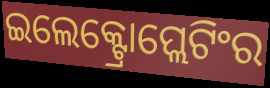
ଇଲେକ୍ଟ୍ରୋପ୍ଲେଟିଂର